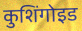
कुशिंगोइड